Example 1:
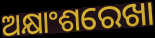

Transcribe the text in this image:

ଅକ୍ଷାଂଶରେଖା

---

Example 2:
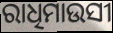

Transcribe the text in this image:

ରାଧିମାଉସୀ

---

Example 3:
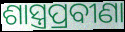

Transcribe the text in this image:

ଶାସ୍ତ୍ରପ୍ରବୀଣା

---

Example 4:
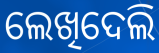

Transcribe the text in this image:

ଲେଖିଦେଲି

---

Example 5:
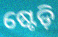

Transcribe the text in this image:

ଷ୍ଟେଡ଼ି